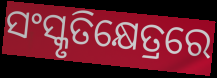
ସଂସ୍କୃତିକ୍ଷେତ୍ରରେ